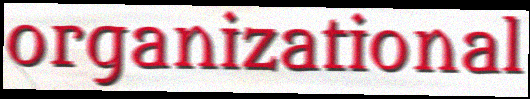
organizational